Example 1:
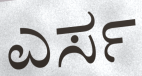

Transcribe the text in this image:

ಎರ್ಸ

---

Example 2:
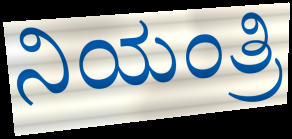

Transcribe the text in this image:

ನಿಯಂತ್ರಿ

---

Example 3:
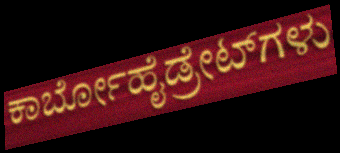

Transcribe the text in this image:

ಕಾರ್ಬೋಹೈಡ್ರೇಟ್‌ಗಳು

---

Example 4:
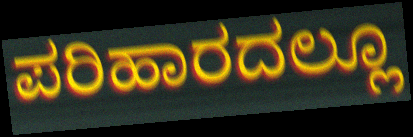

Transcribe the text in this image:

ಪರಿಹಾರದಲ್ಲೂ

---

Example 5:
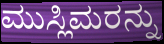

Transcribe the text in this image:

ಮುಸ್ಲಿಮರನ್ನು